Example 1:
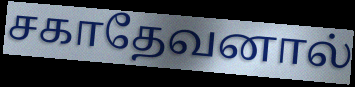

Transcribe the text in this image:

சகாதேவனால்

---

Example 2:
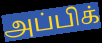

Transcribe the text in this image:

அப்பிக்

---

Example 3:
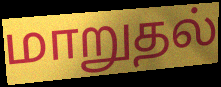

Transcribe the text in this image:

மாறுதல்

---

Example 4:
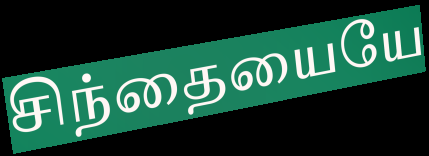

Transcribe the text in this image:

சிந்தையையே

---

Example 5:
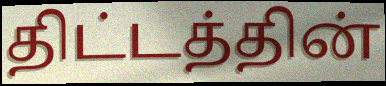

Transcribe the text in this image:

திட்டத்தின்